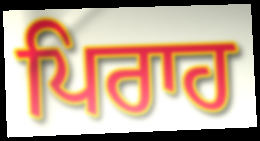
ਪਿਰਾਹ